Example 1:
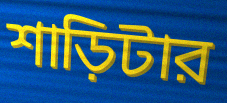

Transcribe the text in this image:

শাড়িটার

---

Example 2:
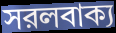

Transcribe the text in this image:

সরলবাক্য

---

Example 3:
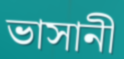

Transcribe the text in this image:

ভাসানী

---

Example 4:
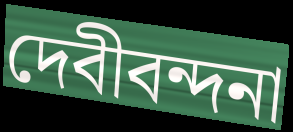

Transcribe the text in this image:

দেবীবন্দনা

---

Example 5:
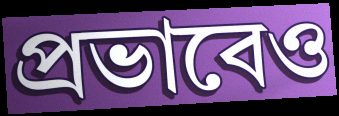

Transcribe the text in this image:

প্রভাবেও